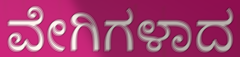
ವೇಗಿಗಳಾದ